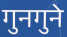
गुनगुने